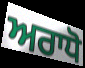
ਅਰਾਧੋ